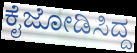
ಕೈಜೋಡಿಸಿದ್ದ